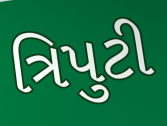
ત્રિપુટી